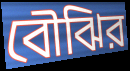
বৌঝির